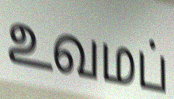
உவமப்